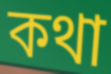
কথা